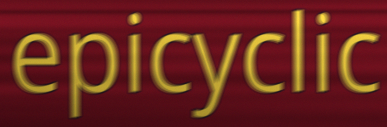
epicyclic